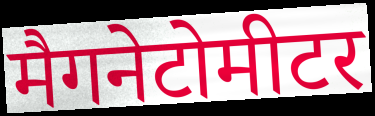
मैगनेटोमीटर